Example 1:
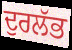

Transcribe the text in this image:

ਦੁਰਲੱਭ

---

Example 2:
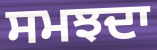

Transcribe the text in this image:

ਸਮਝਦਾ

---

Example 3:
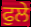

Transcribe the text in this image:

ਫੁਲੇ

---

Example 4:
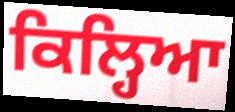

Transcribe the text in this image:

ਕਿਲ੍ਹਿਆ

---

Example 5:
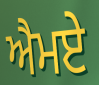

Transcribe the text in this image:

ਐਮਏ